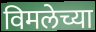
विमलेच्या